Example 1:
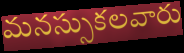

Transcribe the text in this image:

మనస్సుకలవారు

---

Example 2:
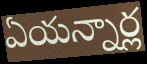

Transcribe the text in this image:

ఏయన్నార్ల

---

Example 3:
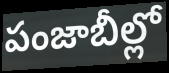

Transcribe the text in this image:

పంజాబీల్లో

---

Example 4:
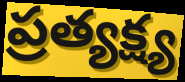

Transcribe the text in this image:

ప్రత్యక్ష్య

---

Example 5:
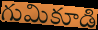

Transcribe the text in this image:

గుమికూడి